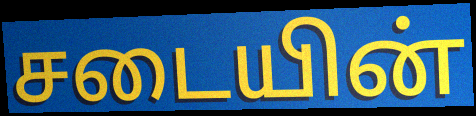
சடையின்